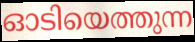
ഓടിയെത്തുന്ന